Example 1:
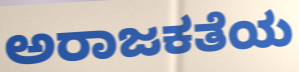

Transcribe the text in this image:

ಅರಾಜಕತೆಯ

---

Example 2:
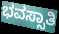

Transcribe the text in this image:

ಭವಸ್ಸಾತಿ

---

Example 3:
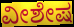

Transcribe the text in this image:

ವೀಶೇಷ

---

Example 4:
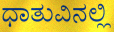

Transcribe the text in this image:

ಧಾತುವಿನಲ್ಲಿ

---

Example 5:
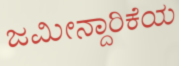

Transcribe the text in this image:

ಜಮೀನ್ದಾರಿಕೆಯ